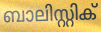
ബാലിസ്റ്റിക്